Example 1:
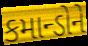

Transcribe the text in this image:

કમાન્ડોને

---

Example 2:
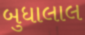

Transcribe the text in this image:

બુધાલાલ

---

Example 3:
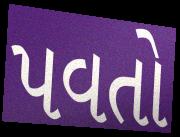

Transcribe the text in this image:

પવતો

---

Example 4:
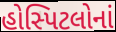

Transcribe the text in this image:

હોસ્પિટલોનાં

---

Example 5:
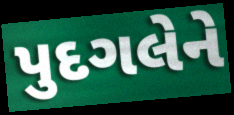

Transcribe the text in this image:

પુદગલેને